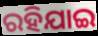
ରହିଯାଇ